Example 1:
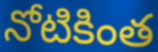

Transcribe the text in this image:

నోటికింత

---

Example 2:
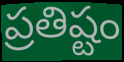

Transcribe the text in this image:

ప్రతిష్టం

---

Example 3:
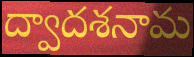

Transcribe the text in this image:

ద్వాదశనామ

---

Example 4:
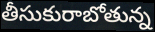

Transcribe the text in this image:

తీసుకురాబోతున్న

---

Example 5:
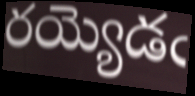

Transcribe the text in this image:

రయ్యెడఁ